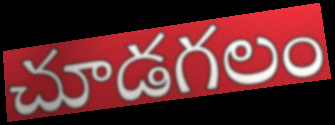
చూడగలం